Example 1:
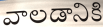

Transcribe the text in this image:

వాలడానికి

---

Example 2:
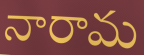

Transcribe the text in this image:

నారామ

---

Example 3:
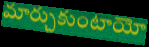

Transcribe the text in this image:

మార్చుకుంటాయో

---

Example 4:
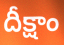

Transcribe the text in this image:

దీక్షాం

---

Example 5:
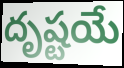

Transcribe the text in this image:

దృష్టయే